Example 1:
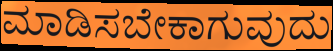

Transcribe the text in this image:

ಮಾಡಿಸಬೇಕಾಗುವುದು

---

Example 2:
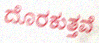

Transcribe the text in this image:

ದೊರಕುತ್ತವೆ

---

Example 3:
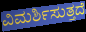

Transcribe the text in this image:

ವಿಮರ್ಶಿಸುತ್ತದೆ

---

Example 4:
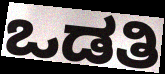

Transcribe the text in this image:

ಒಡತಿ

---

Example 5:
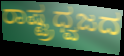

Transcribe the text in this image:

ರಾಷ್ಟ್ರಧ್ವಜದ